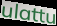
ulattu